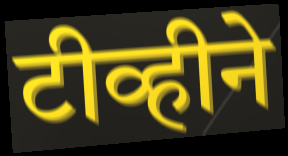
टीव्हीने